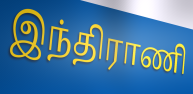
இந்திராணி